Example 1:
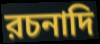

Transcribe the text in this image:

রচনাদি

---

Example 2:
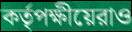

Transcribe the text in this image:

কর্তৃপক্ষীয়েরাও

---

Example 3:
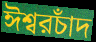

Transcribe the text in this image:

ঈশ্বরচাঁদ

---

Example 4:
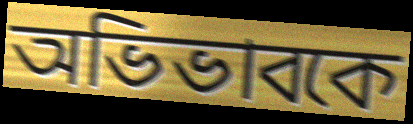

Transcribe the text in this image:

অভিভাবকে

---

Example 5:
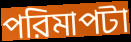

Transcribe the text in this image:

পরিমাপটা